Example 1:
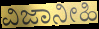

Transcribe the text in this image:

ವಿಜಾನೀಹಿ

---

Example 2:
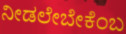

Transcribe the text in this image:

ನೀಡಲೇಬೇಕೆಂಬ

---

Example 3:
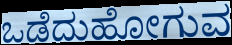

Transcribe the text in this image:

ಒಡೆದುಹೋಗುವ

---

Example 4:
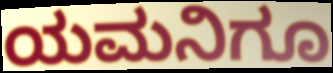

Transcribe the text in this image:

ಯಮನಿಗೂ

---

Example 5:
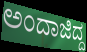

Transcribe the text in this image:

ಅಂದಾಜಿದ್ದ